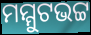
ମମ୍ମୁଟଭଟ୍ଟ